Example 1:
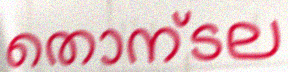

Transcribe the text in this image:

തൊന്ടല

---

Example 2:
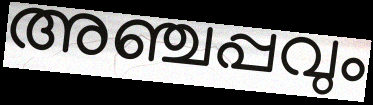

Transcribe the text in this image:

അഞ്ചപ്പവും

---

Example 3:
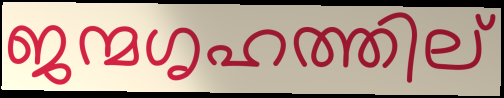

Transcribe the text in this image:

ജന്മഗൃഹത്തില്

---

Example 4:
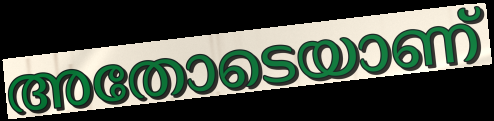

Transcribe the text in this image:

അതോടെയാണ്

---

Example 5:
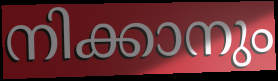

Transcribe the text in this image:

നിക്കാനും